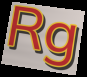
Rg